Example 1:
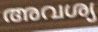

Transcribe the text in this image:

അവശ്യ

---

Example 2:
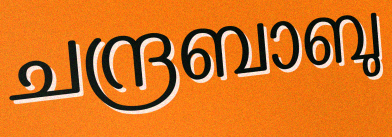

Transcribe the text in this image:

ചന്ദ്രബാബു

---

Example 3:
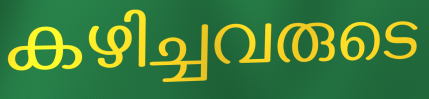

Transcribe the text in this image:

കഴിച്ചവരുടെ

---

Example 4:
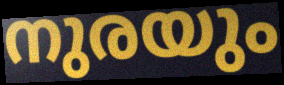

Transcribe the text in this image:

നുരയും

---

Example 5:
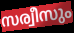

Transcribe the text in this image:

സര്വീസും